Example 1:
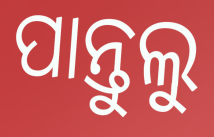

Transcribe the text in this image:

ପାନ୍ତୁଲୁ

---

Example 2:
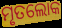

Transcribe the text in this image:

ମୃତଲୋକ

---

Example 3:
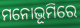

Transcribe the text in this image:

ମନୋଭୂମିରେ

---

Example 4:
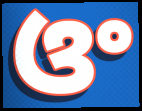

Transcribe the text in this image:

ଓଂ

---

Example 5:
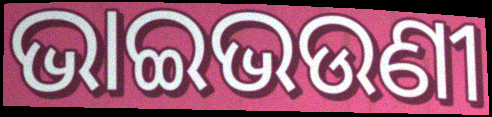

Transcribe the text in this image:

ଭାଇଭଉଣୀ